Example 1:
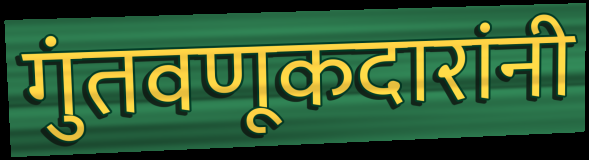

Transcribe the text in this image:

गुंतवणूकदारांनी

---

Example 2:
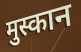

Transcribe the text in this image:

मुस्कान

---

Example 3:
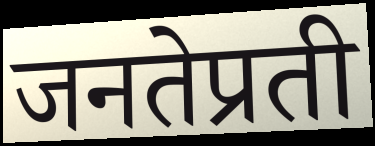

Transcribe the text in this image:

जनतेप्रती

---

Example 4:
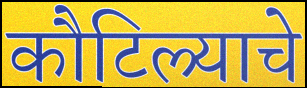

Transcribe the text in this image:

कौटिल्याचे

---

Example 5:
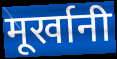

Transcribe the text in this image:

मूर्खानी